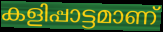
കളിപ്പാട്ടമാണ്